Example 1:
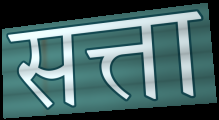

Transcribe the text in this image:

सत्ता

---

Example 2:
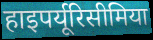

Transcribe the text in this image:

हाइपर्यूरिसीमिया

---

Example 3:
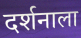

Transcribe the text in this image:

दर्शनाला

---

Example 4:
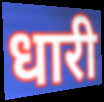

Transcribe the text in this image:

धारी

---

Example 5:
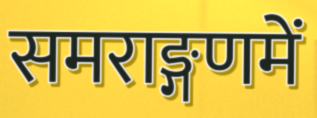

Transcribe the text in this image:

समराङ्गणमें